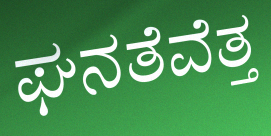
ಘನತೆವೆತ್ತ